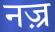
नज़्र